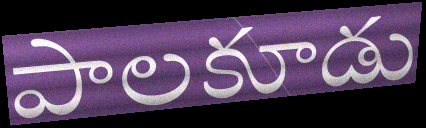
పాలకూడు